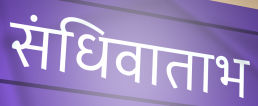
संधिवाताभ